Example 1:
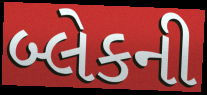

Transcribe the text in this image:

બ્લેકની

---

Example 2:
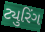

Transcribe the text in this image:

ટ્યુરિંગ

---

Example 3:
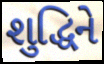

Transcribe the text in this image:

શુદ્ધિને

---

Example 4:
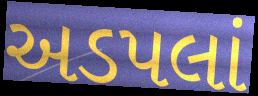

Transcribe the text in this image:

અડપલાં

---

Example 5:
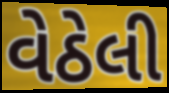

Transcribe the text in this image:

વેઠેલી